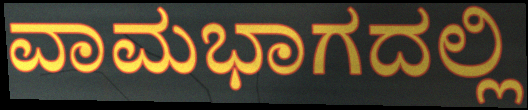
ವಾಮಭಾಗದಲ್ಲಿ